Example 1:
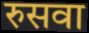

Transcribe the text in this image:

रुसवा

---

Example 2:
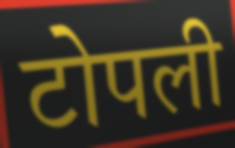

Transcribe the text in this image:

टोपली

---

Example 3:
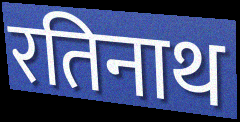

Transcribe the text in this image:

रतिनाथ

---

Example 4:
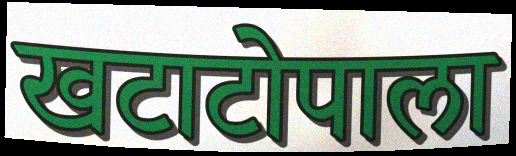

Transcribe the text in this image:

खटाटोपाला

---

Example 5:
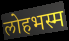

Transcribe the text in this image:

लोहभस्म